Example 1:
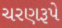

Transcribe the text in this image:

ચરણરૂપે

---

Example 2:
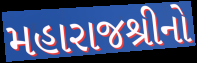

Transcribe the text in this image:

મહારાજશ્રીનો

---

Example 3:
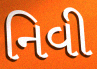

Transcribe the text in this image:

નિવી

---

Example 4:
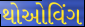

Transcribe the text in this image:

થોઓવિંગ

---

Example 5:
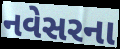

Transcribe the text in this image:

નવેસરના